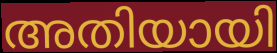
അതിയായി